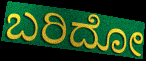
ಬರಿದೋ